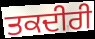
ਤਕਦੀਰੀ